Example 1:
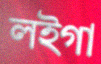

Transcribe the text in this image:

লইগা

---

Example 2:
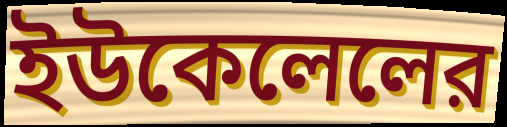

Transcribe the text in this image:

ইউকেলেলের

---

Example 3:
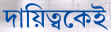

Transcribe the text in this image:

দায়িত্বকেই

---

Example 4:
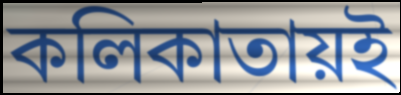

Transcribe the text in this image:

কলিকাতায়ই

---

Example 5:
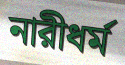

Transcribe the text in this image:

নারীধর্ম